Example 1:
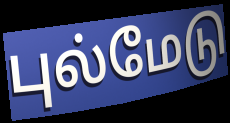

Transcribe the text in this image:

புல்மேடு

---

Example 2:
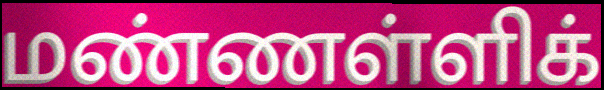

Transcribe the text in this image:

மண்ணள்ளிக்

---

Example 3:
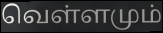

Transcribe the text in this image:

வெள்ளமும்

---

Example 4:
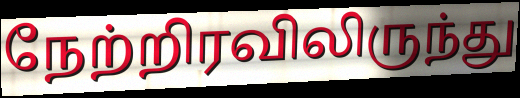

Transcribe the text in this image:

நேற்றிரவிலிருந்து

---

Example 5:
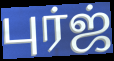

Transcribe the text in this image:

புர்ஜ்